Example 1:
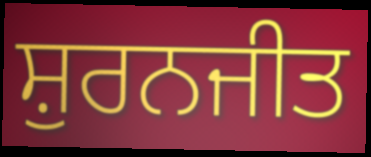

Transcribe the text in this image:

ਸ਼ੁਰਨਜੀਤ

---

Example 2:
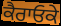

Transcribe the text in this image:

ਕੈਰਾਓਕੇ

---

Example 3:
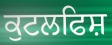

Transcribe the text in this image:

ਕੁਟਲਫਿਸ਼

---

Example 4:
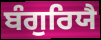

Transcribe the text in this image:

ਬੰਗੁਰਿਯੈ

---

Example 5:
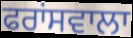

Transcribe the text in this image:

ਫਰਾਂਸਵਾਲਾ